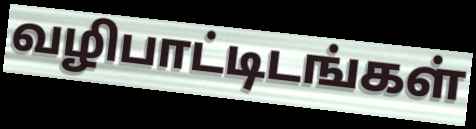
வழிபாட்டிடங்கள்